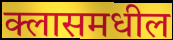
क्लासमधील